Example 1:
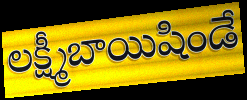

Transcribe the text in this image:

లక్ష్మీబాయిషిండే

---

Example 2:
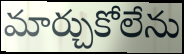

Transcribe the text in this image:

మార్చుకోలేను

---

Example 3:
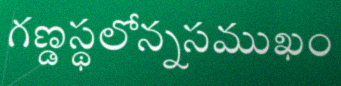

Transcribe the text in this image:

గణ్డస్థలోన్నసముఖం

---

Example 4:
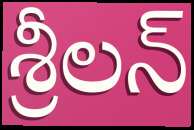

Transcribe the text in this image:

శ్రీలన్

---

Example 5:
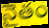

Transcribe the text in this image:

నైతం